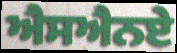
ਐਸਐਨਏ